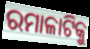
ରମାଳାଟିକୁ